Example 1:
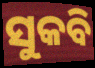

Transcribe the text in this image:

ସୁକବି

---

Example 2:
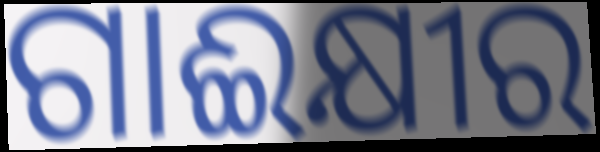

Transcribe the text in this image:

ଗାଈକ୍ଷୀର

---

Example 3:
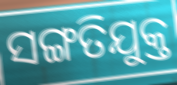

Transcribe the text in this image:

ସଙ୍ଗତିଯୁକ୍ତ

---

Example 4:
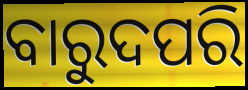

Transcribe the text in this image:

ବାରୁଦପରି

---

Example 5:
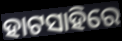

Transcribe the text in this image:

ହାଟସାହିରେ